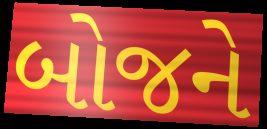
બોજને